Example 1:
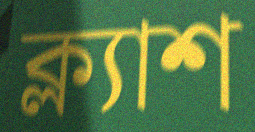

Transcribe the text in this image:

ক্ল্যাশ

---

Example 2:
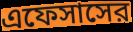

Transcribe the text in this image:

এফেসাসের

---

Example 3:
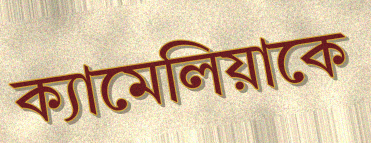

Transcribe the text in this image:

ক্যামেলিয়াকে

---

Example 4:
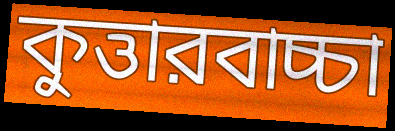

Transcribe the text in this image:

কুত্তারবাচ্চা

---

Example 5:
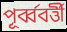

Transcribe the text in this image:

পূর্ব্ববর্ত্তী